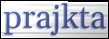
prajkta